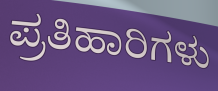
ಪ್ರತಿಹಾರಿಗಳು